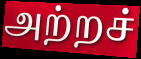
அற்றச்